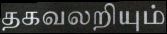
தகவலறியும்